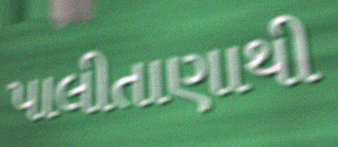
પાલીતાણાથી